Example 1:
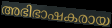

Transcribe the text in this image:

അഭിഭാഷകരായ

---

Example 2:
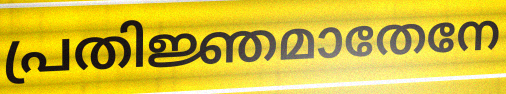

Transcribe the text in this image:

പ്രതിജ്ഞമാതേനേ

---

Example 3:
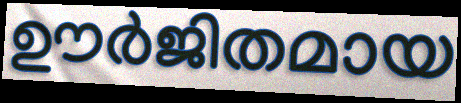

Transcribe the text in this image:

ഊർജിതമായ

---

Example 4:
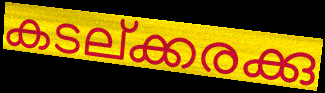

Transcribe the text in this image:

കടല്ക്കരക്കു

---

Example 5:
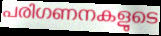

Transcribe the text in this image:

പരിഗണനകളുടെ